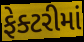
ફેક્ટરીમાં